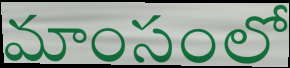
మాంసంలో